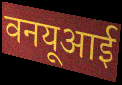
वनयूआई